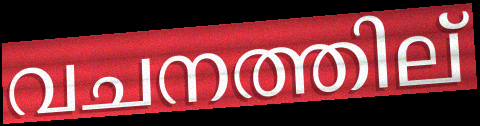
വചനത്തില്